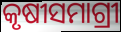
କୃଷୀସମାଗ୍ରୀ